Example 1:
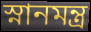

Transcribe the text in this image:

স্নানমন্ত্র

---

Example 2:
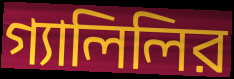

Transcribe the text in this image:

গ্যালিলির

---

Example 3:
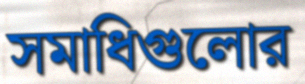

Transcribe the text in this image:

সমাধিগুলোর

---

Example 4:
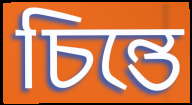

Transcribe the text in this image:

চিন্তে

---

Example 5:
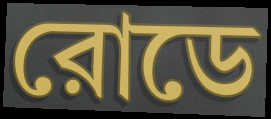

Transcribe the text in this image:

রোডে